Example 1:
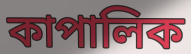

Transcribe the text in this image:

কাপালিক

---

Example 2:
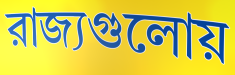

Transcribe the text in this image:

রাজ্যগুলোয়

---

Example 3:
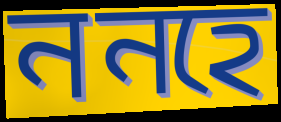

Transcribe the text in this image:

ননহে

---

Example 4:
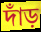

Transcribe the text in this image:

দাঁড়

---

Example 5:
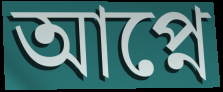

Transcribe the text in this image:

আপ্নে